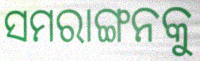
ସମରାଙ୍ଗନକୁ